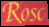
Rosc